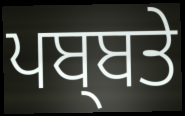
ਪਬ੍ਬਤੇ